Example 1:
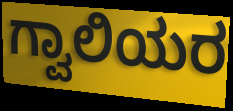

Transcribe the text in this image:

ಗ್ವಾಲಿಯರ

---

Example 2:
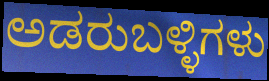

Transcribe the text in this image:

ಅಡರುಬಳ್ಳಿಗಳು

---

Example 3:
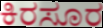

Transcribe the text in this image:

ಕಿರಸೂರ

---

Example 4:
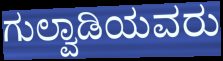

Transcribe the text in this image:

ಗುಲ್ವಾಡಿಯವರು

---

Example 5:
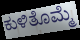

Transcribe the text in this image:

ಕುಳಿತೊಮ್ಮೆ